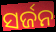
ସର୍ଜନ